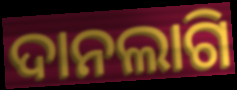
ଦାନଲାଗି